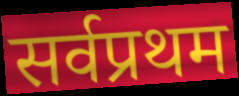
सर्वप्रथम